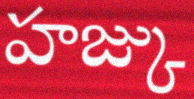
హజ్కు